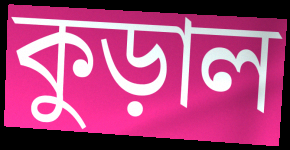
কুড়াল